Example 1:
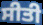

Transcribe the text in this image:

ਸੀਤੀ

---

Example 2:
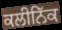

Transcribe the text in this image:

ਕਲੀਨਿੱਕ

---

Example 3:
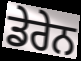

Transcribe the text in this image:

ਡੇਰੇਨ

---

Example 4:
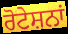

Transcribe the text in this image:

ਰੋਟੇਸ਼ਨਾਂ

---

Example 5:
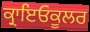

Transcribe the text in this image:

ਕ੍ਰਾਇਓਕੂਲਰ